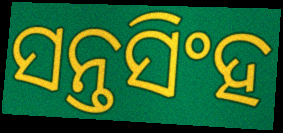
ସନ୍ତସିଂହ